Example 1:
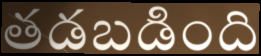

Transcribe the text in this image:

తడబడింది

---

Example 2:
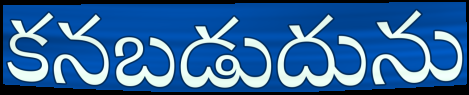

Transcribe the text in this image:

కనబడుదును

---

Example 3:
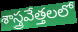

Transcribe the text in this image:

శాస్త్రవేత్తలలో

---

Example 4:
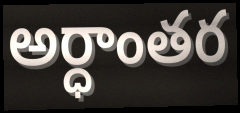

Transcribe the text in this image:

అర్ధాంతర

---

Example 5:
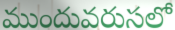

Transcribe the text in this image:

ముందువరుసలో